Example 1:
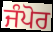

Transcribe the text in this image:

ਜੰਪੋਰ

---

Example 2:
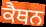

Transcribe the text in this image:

ਕੈਥਨ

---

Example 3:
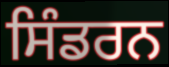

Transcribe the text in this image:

ਸਿੰਡਰਨ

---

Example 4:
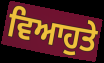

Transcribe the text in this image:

ਵਿਆਹੁਤੇ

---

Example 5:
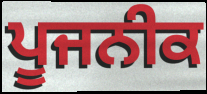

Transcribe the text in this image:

ਪੂਜਨੀਕ